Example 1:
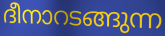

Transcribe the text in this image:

ദീനാറടങ്ങുന്ന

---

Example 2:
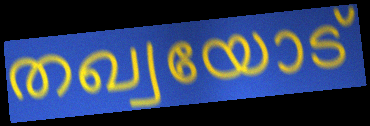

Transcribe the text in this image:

തഖ്വയോട്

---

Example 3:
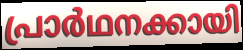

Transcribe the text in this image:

പ്രാർഥനക്കായി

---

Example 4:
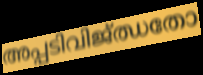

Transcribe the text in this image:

അപ്പടിവിജ്ഝതോ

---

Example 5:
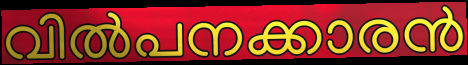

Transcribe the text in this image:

വിൽപനക്കാരൻ